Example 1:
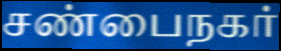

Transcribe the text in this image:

சண்பைநகர்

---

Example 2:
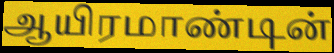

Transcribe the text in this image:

ஆயிரமாண்டின்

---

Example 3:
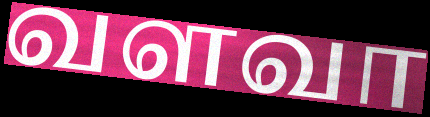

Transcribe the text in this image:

வளவா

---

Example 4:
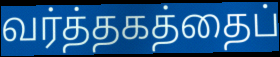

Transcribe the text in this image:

வர்த்தகத்தைப்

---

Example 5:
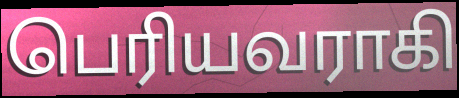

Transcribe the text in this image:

பெரியவராகி